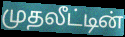
முதலீட்டின்